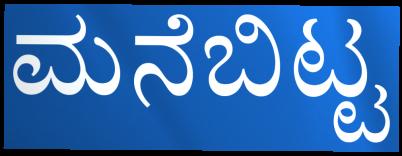
ಮನೆಬಿಟ್ಟ